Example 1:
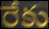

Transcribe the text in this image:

రేకు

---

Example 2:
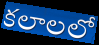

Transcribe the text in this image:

కలాలలో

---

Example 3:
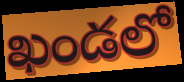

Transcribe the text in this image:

ఖండలో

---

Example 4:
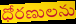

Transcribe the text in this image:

ధోరణులను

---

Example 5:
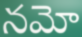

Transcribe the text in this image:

నమో